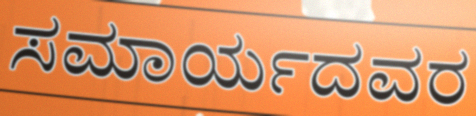
ಸಮಾರ್ಯದವರ